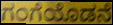
ಗಂಗೆಯೊಡನೆ